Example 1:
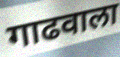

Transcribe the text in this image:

गाढवाला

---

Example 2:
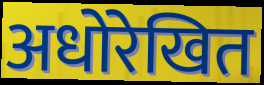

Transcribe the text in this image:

अधोरेखित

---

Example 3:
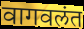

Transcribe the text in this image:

वागवलंत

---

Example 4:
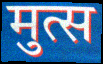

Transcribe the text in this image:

मुत्स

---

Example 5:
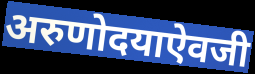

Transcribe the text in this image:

अरुणोदयाऐवजी